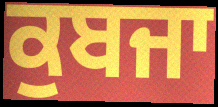
ਕੁਬਜਾ